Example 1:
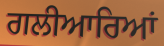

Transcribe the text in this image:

ਗਲੀਆਰਿਆਂ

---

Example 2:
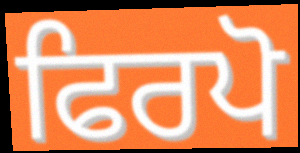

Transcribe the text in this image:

ਫਿਰਪੋ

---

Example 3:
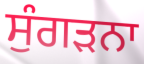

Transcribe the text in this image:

ਸੁੰਗੜਨਾ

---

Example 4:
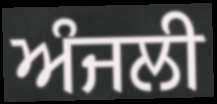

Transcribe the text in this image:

ਅੰਜਲੀ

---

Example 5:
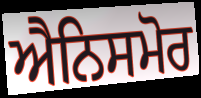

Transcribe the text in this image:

ਐਨਿਸਮੋਰ